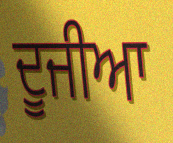
ਦੂਜੀਆ